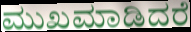
ಮುಖಮಾಡಿದರೆ